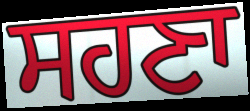
ਸਹਣਾ